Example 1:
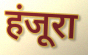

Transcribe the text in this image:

हंजूरा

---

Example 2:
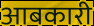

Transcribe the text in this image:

आबकारी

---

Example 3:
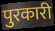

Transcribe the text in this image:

पुरकारी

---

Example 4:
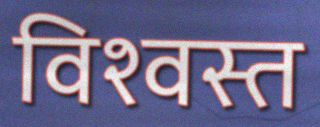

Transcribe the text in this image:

विश्वस्त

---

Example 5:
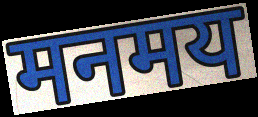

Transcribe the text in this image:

मनमय